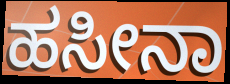
ಹಸೀನಾ